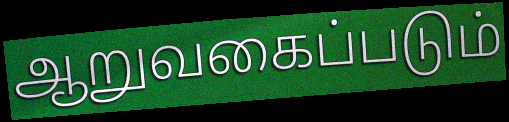
ஆறுவகைப்படும்